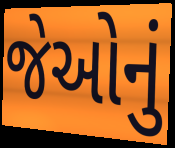
જેઓનું